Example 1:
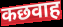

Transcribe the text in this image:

कछवाह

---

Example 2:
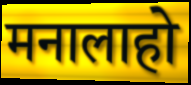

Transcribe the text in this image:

मनालाहो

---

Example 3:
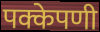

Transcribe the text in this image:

पक्केपणी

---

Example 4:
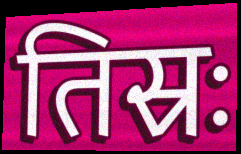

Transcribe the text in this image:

तिस्रः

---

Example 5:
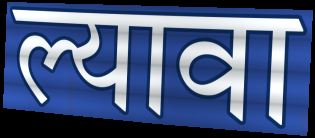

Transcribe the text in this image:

ल्यावा